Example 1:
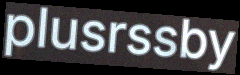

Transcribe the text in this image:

plusrssby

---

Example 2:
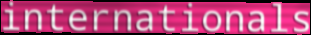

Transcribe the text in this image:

internationals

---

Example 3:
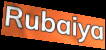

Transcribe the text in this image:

Rubaiya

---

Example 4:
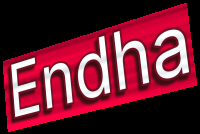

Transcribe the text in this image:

Endha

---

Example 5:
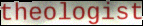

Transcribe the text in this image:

theologist